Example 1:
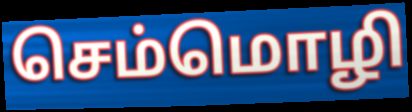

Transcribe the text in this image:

செம்மொழி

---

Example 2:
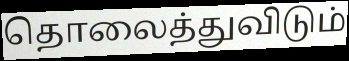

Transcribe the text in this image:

தொலைத்துவிடும்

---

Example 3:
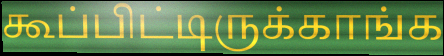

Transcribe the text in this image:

கூப்பிட்டிருக்காங்க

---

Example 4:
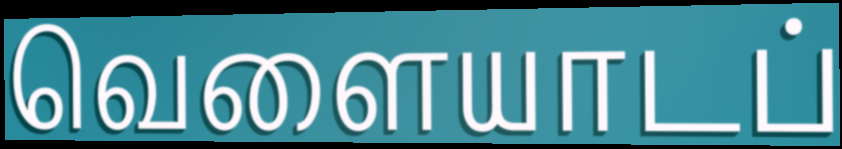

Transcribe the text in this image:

வெளையாடப்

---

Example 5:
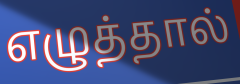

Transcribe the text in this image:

எழுத்தால்